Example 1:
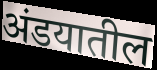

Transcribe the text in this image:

अंडयातील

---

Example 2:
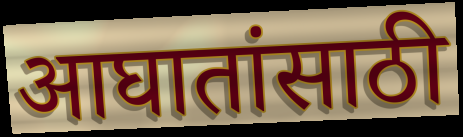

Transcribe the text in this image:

आघातांसाठी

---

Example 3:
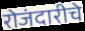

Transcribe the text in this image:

रोजंदारीचे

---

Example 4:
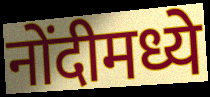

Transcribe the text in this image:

नोंदीमध्ये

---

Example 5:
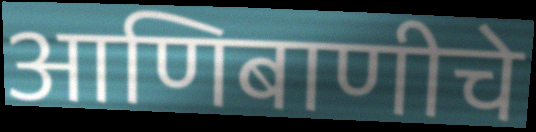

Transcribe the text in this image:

आणिबाणीचे